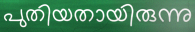
പുതിയതായിരുന്നു